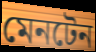
মেনটেন